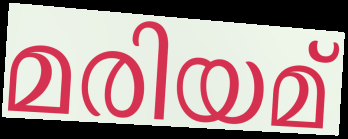
മരിയമ്